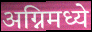
अग्निमध्ये